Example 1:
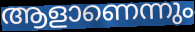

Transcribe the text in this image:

ആളാണെന്നും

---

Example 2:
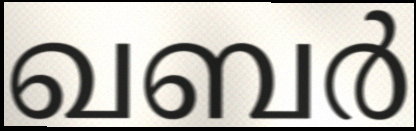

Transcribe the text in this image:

ഖബർ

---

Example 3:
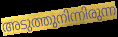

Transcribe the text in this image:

അടുത്തുനിന്നിരുന്ന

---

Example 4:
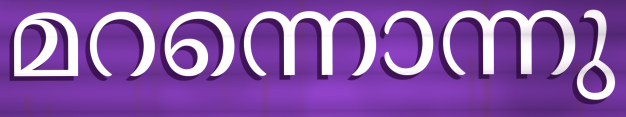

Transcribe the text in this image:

മറന്നൊന്നു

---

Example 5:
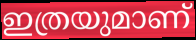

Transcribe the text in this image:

ഇത്രയുമാണ്